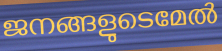
ജനങ്ങളുടെമേൽ